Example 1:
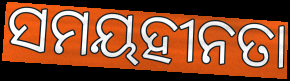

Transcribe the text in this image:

ସମୟହୀନତା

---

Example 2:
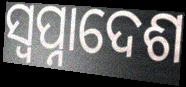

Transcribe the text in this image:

ସ୍ବପ୍ନାଦେଶ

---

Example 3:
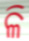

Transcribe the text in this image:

ଳି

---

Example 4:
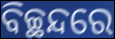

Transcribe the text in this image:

ବିଚ୍ଛନ୍ଦରେ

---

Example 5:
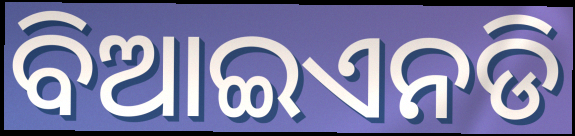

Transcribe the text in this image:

ବିଆଇଏନଡି